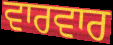
ਵਾਰਵਾਰ